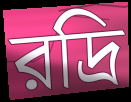
রদ্রি